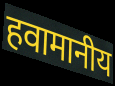
हवामानीय